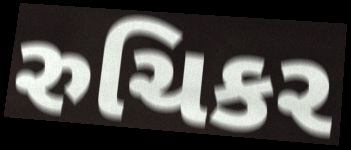
રુચિકર